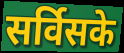
सर्विसके